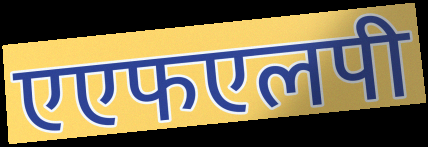
एएफएलपी